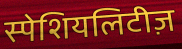
स्पेशियलिटीज़